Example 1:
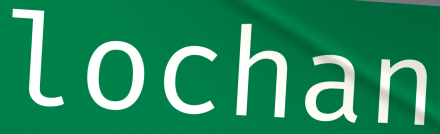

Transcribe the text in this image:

lochan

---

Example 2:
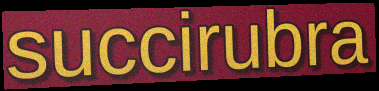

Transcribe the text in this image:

succirubra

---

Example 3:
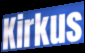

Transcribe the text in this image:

Kirkus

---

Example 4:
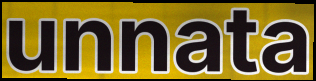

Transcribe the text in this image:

unnata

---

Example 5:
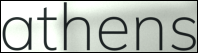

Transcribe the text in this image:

athens